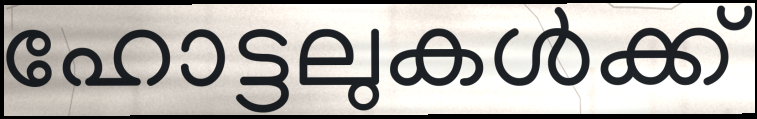
ഹോട്ടലുകൾക്ക്